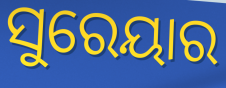
ସୁରେୟାର